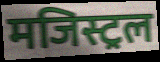
मजिस्ट्रल